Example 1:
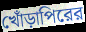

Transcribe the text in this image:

খোঁড়াপিরের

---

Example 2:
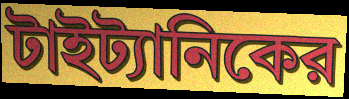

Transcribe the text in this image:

টাইট্যানিকের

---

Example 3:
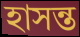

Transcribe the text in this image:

হাসন্ত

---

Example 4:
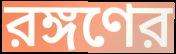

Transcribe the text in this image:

রঙ্গণের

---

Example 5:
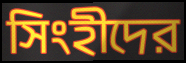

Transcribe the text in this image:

সিংহীদের